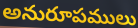
అనురూపములు